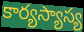
కార్యస్యాస్య